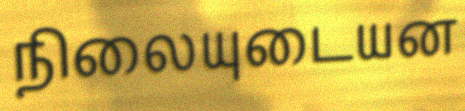
நிலையுடையன